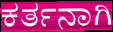
ಕರ್ತನಾಗಿ